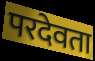
परदेवता